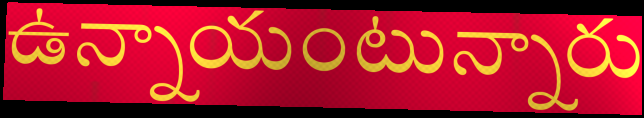
ఉన్నాయంటున్నారు